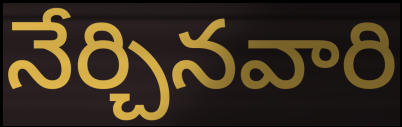
నేర్చినవారి